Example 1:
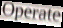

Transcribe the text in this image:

Operate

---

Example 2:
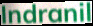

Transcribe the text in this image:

Indranil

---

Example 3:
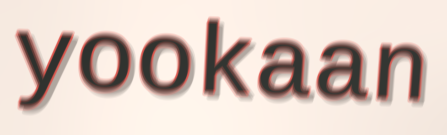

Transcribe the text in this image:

yookaan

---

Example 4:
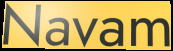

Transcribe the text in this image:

Navam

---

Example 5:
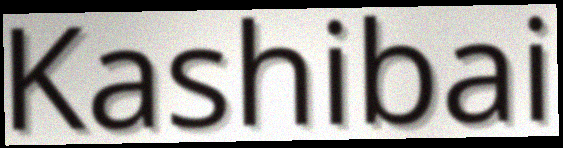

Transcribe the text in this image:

Kashibai